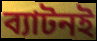
ব্যাটনই